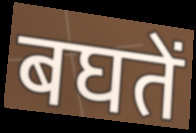
बघतें